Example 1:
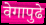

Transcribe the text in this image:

वेगापुढे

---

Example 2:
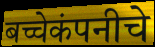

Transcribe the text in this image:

बच्चेकंपनीचे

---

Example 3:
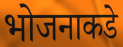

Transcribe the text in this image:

भोजनाकडे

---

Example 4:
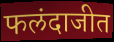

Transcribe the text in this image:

फलंदाजीत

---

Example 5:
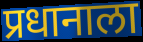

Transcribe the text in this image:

प्रधानाला